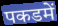
पकडमें